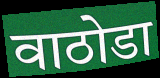
वाठोडा